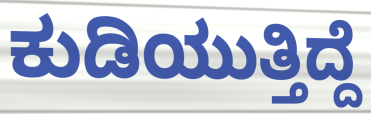
ಕುಡಿಯುತ್ತಿದ್ದೆ